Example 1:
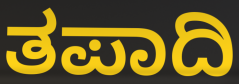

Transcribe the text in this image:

ತಪಾದಿ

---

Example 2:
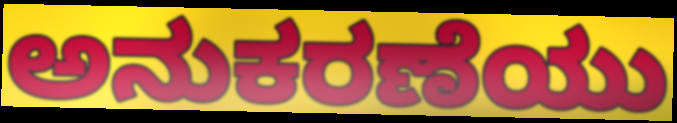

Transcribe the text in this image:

ಅನುಕರಣೆಯು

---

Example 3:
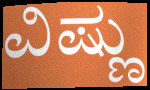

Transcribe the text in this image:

ವಿಷ್ಣು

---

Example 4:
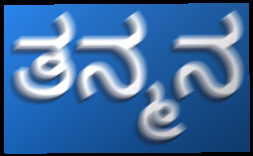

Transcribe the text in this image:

ತನ್ಮನ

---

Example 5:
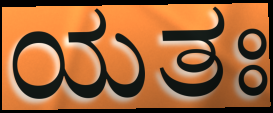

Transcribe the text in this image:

ಯತಃ